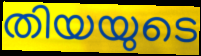
തിയയുടെ